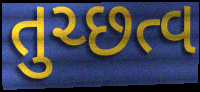
તુચ્છત્વ